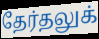
தேர்தலுக்